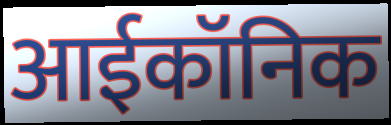
आईकॉनिक